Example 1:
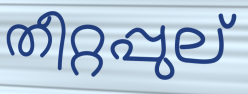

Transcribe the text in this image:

തീറ്റപ്പുല്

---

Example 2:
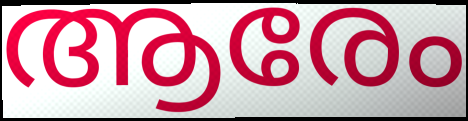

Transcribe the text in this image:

ആരേം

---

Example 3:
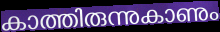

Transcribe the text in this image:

കാത്തിരുന്നുകാണും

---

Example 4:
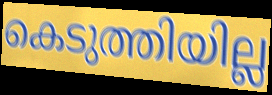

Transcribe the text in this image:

കെടുത്തിയില്ല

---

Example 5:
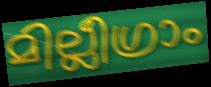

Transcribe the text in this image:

മില്ലീഗ്രാം